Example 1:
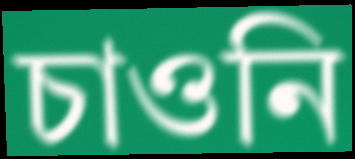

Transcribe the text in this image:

চাওনি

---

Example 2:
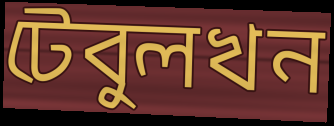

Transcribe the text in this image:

টেবুলখন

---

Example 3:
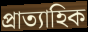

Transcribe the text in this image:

প্ৰাত্যাহিক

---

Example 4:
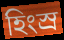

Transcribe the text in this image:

হিংস্ৰ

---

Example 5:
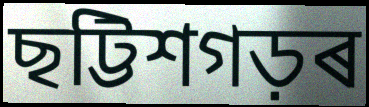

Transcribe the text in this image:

ছট্টিশগড়ৰ